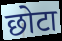
छोटा